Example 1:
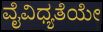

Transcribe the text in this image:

ವೈವಿಧ್ಯತೆಯೇ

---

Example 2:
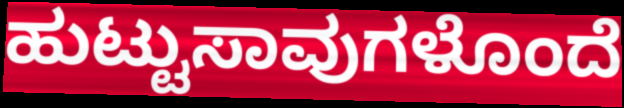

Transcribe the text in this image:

ಹುಟ್ಟುಸಾವುಗಳೊಂದೆ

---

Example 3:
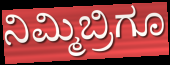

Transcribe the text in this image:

ನಿಮ್ಮಿಬ್ರಿಗೂ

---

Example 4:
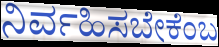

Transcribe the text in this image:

ನಿರ್ವಹಿಸಬೇಕೆಂಬ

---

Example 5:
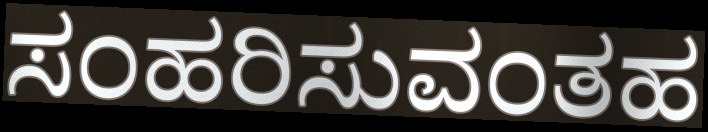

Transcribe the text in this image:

ಸಂಹರಿಸುವಂತಹ